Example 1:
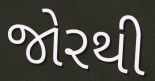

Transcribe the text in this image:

જોરથી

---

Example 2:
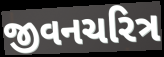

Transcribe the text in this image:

જીવનચરિત્ર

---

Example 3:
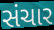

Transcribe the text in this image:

સંચાર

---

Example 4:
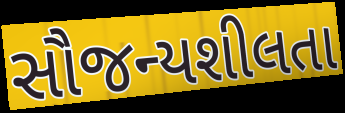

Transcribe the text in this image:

સૌજન્યશીલતા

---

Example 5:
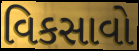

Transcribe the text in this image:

વિકસાવો